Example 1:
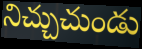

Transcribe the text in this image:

నిచ్చుచుండు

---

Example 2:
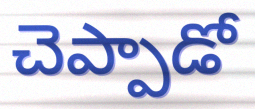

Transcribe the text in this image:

చెప్పాడో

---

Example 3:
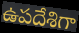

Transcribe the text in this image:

ఉపదేశిగా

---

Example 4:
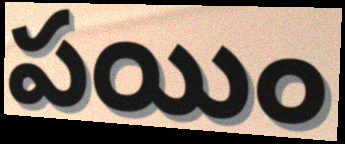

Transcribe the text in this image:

పయిం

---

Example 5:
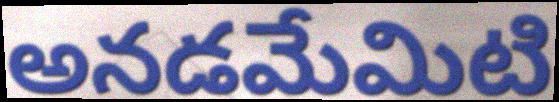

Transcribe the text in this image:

అనడమేమిటి